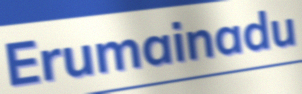
Erumainadu